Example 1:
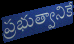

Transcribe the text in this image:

ప్రభుత్వానికే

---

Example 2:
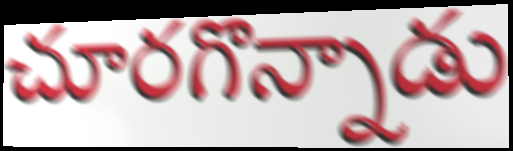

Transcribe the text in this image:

చూరగొన్నాడు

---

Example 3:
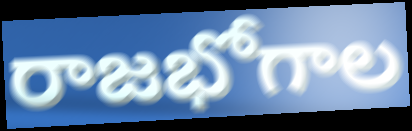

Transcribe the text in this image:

రాజభోగాల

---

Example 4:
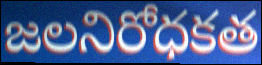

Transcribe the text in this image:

జలనిరోధకత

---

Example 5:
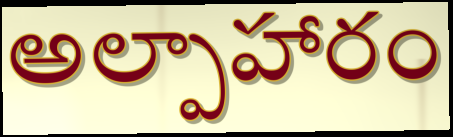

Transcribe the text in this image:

అల్పాహారం